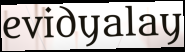
evidyalay